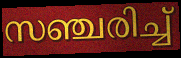
സഞ്ചരിച്ച്